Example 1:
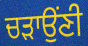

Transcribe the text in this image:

ਚੜਾਉਂਣੀ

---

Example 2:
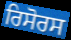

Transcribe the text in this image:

ਰਿਸੋਰਸ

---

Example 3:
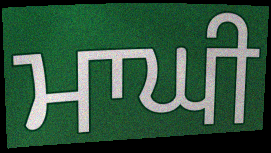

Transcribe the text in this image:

ਮਾਘੀ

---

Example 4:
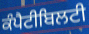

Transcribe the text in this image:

ਕੰਪੈਟੀਬਿਲਟੀ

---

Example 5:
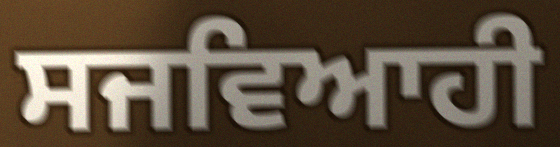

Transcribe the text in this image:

ਸਜਵਿਆਹੀ